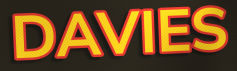
DAVIES